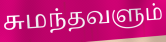
சுமந்தவளும்